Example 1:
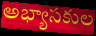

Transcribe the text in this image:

అభ్యాసకుల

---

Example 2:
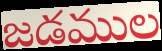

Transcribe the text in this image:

జడముల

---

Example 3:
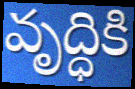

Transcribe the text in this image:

వృద్ధికి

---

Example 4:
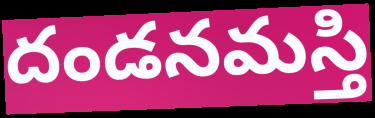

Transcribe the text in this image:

దండనమస్తి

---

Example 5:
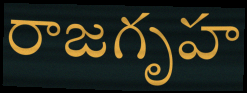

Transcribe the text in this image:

రాజగృహ